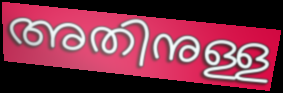
അതിനുള്ള